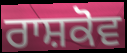
ਰਾਸ਼ਕੋਵ